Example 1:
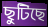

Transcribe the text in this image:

ছুটিছে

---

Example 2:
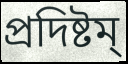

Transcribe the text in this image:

প্রদিষ্টম্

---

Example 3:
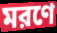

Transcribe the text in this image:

মরণে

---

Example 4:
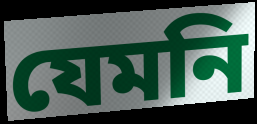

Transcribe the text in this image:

যেমনি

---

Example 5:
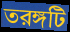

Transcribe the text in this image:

তরঙ্গটি